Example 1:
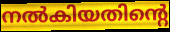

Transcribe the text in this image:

നൽകിയതിന്റെ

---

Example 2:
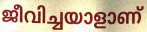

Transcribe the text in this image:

ജീവിച്ചയാളാണ്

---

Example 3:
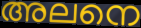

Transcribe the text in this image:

അലനെ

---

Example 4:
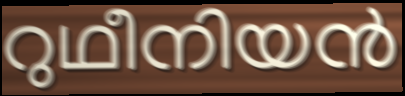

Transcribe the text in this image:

റുഥീനിയൻ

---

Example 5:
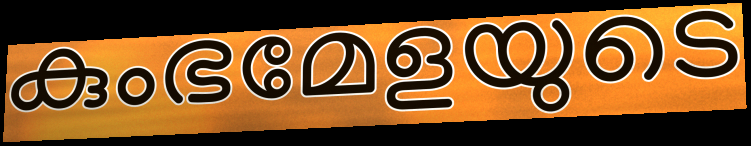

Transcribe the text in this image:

കുംഭമേളയുടെ